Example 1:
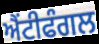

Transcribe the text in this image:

ਐਂਟੀਫੰਗਲ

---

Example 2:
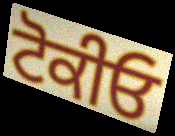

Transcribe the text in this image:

ਟੋਕੀਓ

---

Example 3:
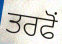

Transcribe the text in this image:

ਤਰਫੋਂ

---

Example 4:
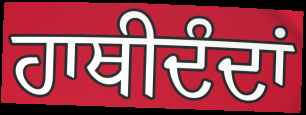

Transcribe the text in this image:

ਹਾਥੀਦੰਦਾਂ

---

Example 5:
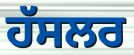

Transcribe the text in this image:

ਹੱਸਲਰ